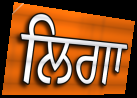
ਲਿਗਾ